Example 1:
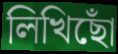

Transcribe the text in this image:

লিখিছোঁ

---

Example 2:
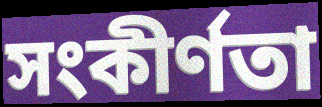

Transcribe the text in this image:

সংকীৰ্ণতা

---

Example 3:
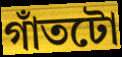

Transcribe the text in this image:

গাঁতটো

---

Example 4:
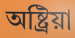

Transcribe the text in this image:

অষ্ট্ৰিয়া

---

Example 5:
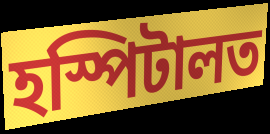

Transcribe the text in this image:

হস্পিটালত